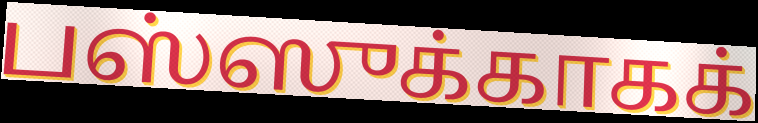
பஸ்ஸுக்காகக்